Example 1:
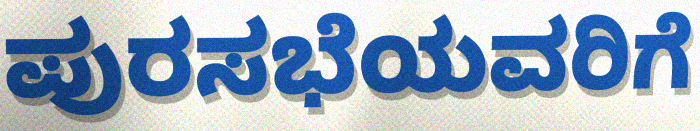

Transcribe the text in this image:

ಪುರಸಭೆಯವರಿಗೆ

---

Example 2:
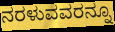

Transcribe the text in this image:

ನರಳುವವರನ್ನೂ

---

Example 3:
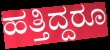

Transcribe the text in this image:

ಹತ್ತಿದ್ದರೂ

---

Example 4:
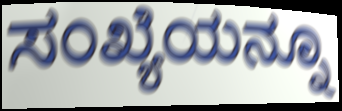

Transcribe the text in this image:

ಸಂಖ್ಯೆಯನ್ನೂ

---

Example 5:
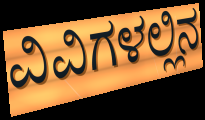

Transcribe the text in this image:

ವಿವಿಗಳಲ್ಲಿನ